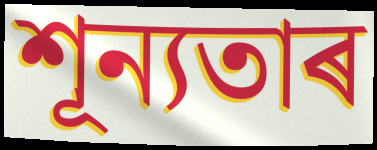
শূন্যতাৰ